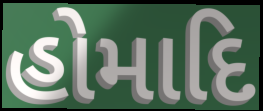
હોમાદિ